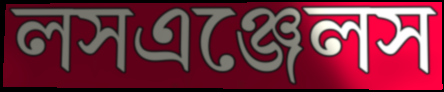
লসএঞ্জেলস